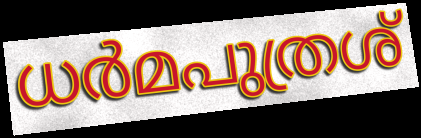
ധർമപുത്രശ്